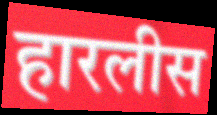
हारलीस